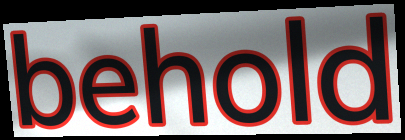
behold